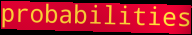
probabilities